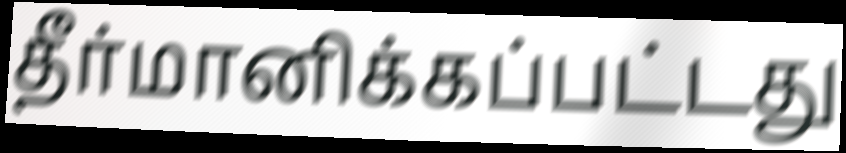
தீர்மானிக்கப்பட்டது